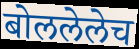
बोललेलेच